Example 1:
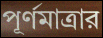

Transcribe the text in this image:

পূর্ণমাত্রার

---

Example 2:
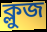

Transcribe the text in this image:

ক্লুজ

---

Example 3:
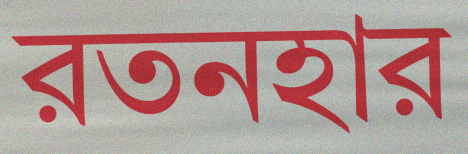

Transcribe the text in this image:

রতনহার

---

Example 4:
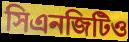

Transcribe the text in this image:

সিএনজিটিও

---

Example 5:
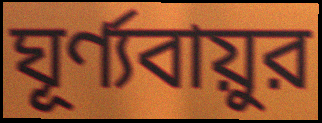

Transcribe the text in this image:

ঘূর্ণ্যবায়ুর